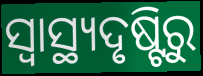
ସ୍ୱାସ୍ଥ୍ୟଦୃଷ୍ଟିରୁ